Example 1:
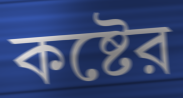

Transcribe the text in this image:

কষ্টের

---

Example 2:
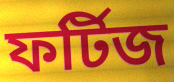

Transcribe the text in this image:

ফর্টিজ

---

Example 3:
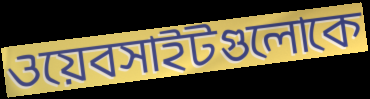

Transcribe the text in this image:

ওয়েবসাইটগুলোকে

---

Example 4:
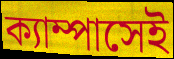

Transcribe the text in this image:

ক্যাম্পাসেই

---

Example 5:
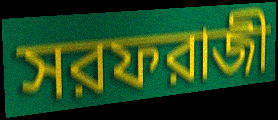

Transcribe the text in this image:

সরফরাজী